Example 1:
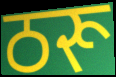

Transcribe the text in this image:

ठरू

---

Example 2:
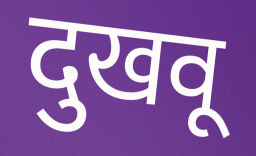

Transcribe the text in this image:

दुखवू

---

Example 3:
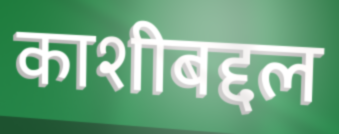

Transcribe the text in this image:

काशीबद्दल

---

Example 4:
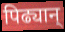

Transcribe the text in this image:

पिढ्यान्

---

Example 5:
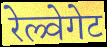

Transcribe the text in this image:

रेल्वेगेट